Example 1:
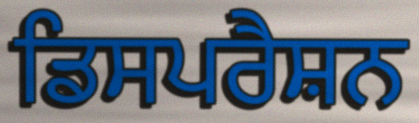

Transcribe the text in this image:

ਡਿਸਪਰੈਸ਼ਨ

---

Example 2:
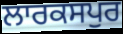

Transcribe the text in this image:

ਲਾਰਕਸਪੁਰ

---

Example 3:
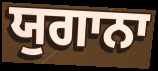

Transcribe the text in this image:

ਯੁਗਾਨਾ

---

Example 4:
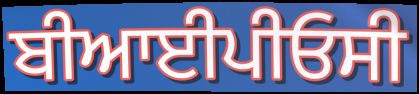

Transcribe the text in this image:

ਬੀਆਈਪੀਓਸੀ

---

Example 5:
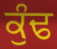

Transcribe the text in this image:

ਕੁੰਢ